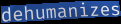
dehumanizes